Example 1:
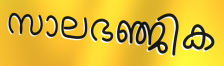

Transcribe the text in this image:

സാലഭഞ്ജിക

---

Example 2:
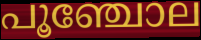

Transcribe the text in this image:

പൂഞ്ചോല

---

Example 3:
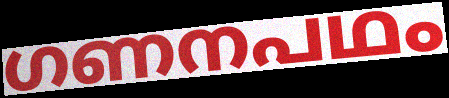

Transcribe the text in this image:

ഗണനപഥം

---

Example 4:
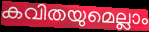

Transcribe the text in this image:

കവിതയുമെല്ലാം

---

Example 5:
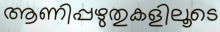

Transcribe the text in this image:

ആണിപ്പഴുതുകളിലൂടെ